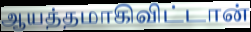
ஆயத்தமாகிவிட்டான்